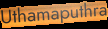
Uthamaputhra